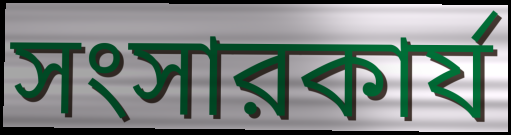
সংসারকার্য